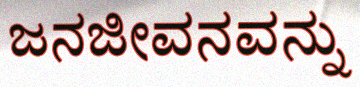
ಜನಜೀವನವನ್ನು